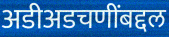
अडीअडचणींबद्दल